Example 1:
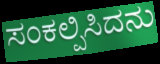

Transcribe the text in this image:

ಸಂಕಲ್ಪಿಸಿದನು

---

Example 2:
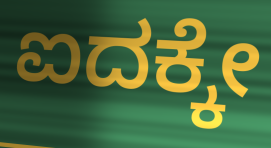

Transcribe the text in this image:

ಐದಕ್ಕೇ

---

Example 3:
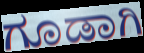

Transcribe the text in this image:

ಗೂಡಾಗಿ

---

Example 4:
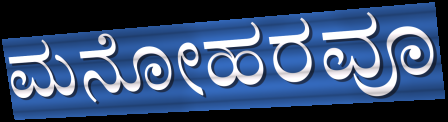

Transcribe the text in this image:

ಮನೋಹರವೂ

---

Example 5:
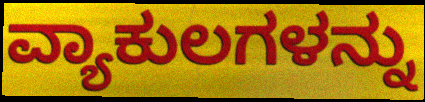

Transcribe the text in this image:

ವ್ಯಾಕುಲಗಳನ್ನು